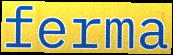
ferma